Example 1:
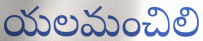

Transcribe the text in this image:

యలమంచిలి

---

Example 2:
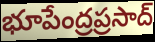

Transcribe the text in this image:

భూపేంద్రప్రసాద్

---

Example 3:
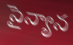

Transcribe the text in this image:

సైన్యాన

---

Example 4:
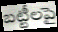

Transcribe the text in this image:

బట్టీలపై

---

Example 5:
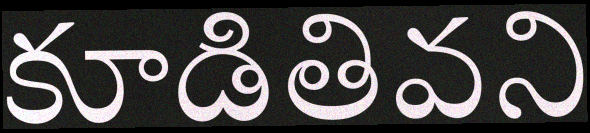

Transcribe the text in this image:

కూడితివని